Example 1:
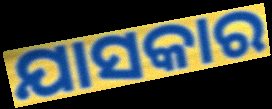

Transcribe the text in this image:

ଯାସକାର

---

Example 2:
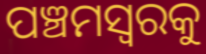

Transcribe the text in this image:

ପଞ୍ଚମସ୍ୱରକୁ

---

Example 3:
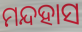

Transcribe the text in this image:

ମନ୍ଦହାସ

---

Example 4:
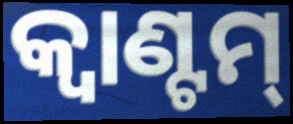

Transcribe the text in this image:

କ୍ୱାଣ୍ଟମ୍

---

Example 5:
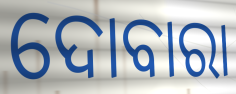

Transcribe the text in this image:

ଦୋବାରା